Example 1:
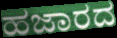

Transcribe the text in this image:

ಹಜಾರದ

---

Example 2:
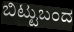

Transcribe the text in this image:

ಬಿಟ್ಟುಬಂದ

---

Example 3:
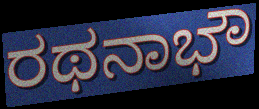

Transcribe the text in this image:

ರಥನಾಭೌ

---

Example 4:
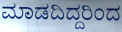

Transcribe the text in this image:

ಮಾಡದಿದ್ದರಿಂದ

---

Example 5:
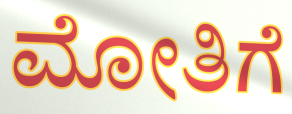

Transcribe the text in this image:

ಮೋತಿಗೆ